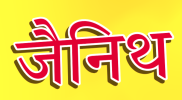
जैनिथ